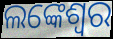
ଲଙ୍କେଶ୍ବର